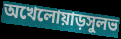
অখেলোয়াড়সুলভ